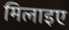
मिलाइए